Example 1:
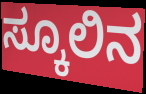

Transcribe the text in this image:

ಸ್ಕೂಲಿನ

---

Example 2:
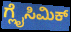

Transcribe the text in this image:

ಗ್ಲೈಸಿಮಿಕ್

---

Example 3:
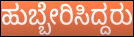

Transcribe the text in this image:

ಹುಬ್ಬೇರಿಸಿದ್ದರು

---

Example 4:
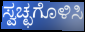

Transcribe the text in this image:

ಸ್ವಚ್ಛಗೊಳಿಸಿ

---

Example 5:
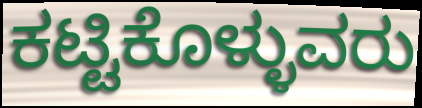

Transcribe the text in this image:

ಕಟ್ಟಿಕೊಳ್ಳುವರು